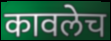
कावलेच